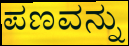
ಪಣವನ್ನು